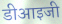
डीआइजी